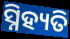
ସ୍ନିହ୍ୟତି